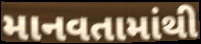
માનવતામાંથી